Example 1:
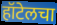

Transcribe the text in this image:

हॉटेलचा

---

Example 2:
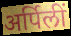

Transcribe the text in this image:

अर्पिलीं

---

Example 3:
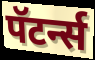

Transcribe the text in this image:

पॅटर्न्स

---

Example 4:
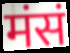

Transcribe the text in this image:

मंसं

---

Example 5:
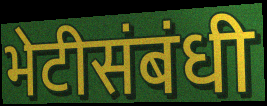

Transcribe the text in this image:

भेटीसंबंधी